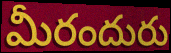
మీరందురు